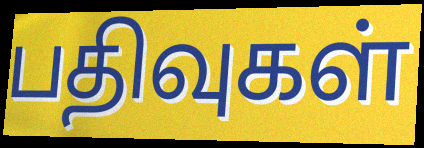
பதிவுகள்